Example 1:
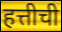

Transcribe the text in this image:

हत्तीची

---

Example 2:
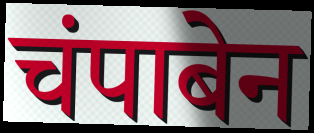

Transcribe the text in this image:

चंपाबेन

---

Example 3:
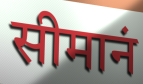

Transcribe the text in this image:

सीमानं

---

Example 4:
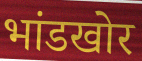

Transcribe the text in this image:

भांडखोर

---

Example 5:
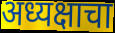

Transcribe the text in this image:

अध्यक्षाचा